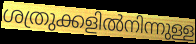
ശത്രുക്കളിൽനിന്നുള്ള